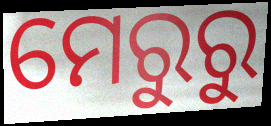
ମେରୁରୁ